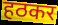
हठकर